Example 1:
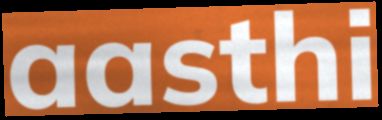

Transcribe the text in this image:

aasthi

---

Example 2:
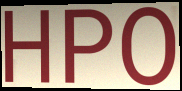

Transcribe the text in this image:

HPO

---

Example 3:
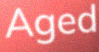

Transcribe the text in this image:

Aged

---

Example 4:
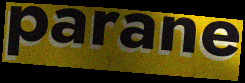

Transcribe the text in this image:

parane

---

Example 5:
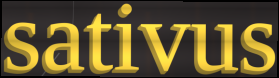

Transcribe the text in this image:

sativus